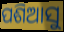
ପଶିଆସୁ